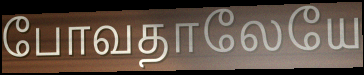
போவதாலேயே